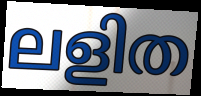
ലളിത